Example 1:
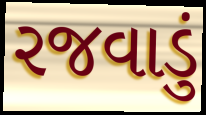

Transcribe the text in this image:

રજવાડું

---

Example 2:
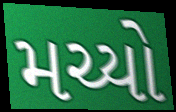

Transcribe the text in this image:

મચ્યો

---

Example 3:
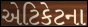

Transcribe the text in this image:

એટિકેટના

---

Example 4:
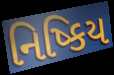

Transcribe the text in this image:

નિષ્કિય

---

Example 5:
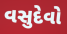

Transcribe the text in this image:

વસુદેવો